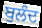
ਬੁਲੰਦ